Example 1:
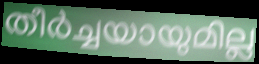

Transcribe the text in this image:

തീർച്ചയായുമില്ല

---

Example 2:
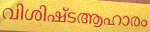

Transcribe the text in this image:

വിശിഷ്ടആഹാരം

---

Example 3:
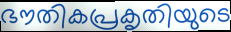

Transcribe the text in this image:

ഭൗതികപ്രകൃതിയുടെ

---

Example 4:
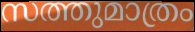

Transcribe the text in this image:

സത്തുമാത്രം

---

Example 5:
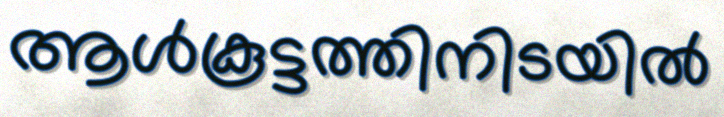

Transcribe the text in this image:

ആൾകൂട്ടത്തിനിടയിൽ